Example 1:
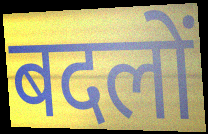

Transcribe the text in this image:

बदलों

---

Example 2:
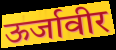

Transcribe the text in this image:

ऊर्जावीर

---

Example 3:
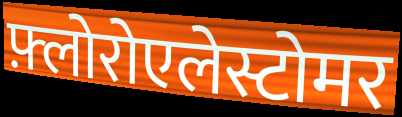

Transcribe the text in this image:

फ़्लोरोएलेस्टोमर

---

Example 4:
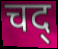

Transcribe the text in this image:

चद्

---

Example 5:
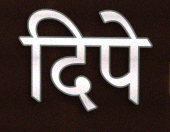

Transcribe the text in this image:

दिपे